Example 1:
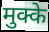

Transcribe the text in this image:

मुक्के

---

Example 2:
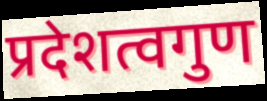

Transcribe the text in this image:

प्रदेशत्वगुण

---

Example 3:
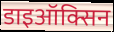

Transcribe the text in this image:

डाइऑक्सिन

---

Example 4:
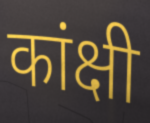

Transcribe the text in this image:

कांक्षी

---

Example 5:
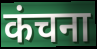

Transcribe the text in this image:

कंचना